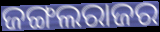
ଜଙ୍ଗଲରାଜର